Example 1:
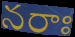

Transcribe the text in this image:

నరాః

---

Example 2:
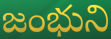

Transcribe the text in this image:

జంభుని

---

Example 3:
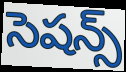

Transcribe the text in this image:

సెషన్స్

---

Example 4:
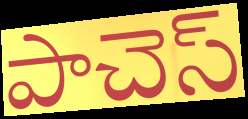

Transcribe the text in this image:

పాచెస్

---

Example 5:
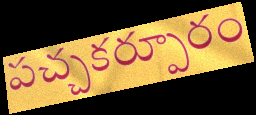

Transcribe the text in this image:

పచ్చకర్పూరం